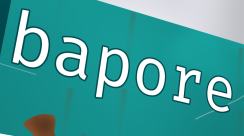
bapore